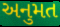
અનુમત